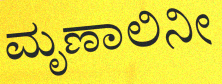
ಮೃಣಾಲಿನೀ